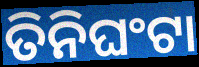
ତିନିଘଂଟା